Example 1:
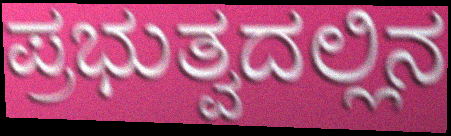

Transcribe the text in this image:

ಪ್ರಭುತ್ವದಲ್ಲಿನ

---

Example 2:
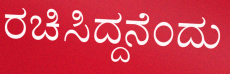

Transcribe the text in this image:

ರಚಿಸಿದ್ದನೆಂದು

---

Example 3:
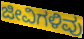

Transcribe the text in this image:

ಜೀವಿಗಳಿವು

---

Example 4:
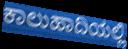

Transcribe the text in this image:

ಕಾಲುಹಾದಿಯಲ್ಲಿ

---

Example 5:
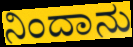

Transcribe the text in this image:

ನಿಂದಾನು